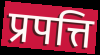
प्रपत्ति